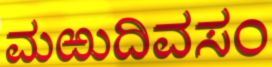
ಮಱುದಿವಸಂ